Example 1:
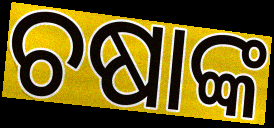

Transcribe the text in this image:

ଚଷାଙ୍କ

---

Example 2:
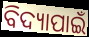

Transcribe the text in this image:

ବିଦ୍ୟାପାଇଁ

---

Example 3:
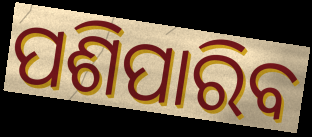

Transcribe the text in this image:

ପଶିପାରିବ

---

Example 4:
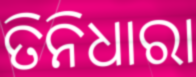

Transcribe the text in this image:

ତିନିଧାରା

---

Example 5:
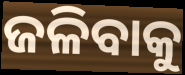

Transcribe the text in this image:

ଜଳିବାକୁ